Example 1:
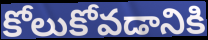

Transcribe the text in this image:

కోలుకోవడానికి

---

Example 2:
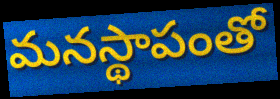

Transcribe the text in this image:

మనస్థాపంతో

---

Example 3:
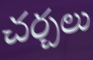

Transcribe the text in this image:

చర్చలు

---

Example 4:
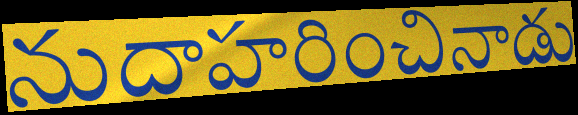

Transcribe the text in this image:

నుదాహరించినాడు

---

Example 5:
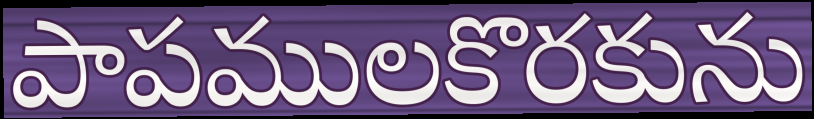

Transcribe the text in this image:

పాపములకొరకును